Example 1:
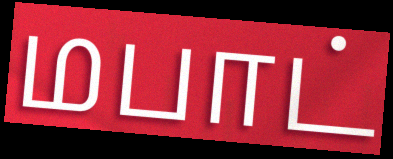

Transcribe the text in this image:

மபாட்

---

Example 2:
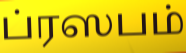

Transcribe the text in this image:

ப்ரஸபம்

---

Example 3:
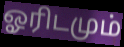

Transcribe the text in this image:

ஓரிடமும்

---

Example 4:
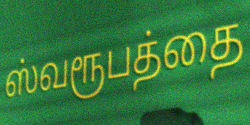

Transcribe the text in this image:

ஸ்வரூபத்தை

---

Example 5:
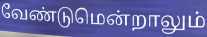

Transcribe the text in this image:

வேண்டுமென்றாலும்